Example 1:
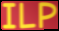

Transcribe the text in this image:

ILP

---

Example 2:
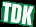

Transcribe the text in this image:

TDK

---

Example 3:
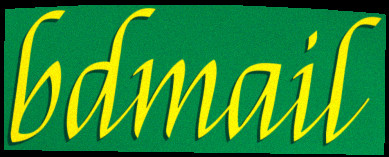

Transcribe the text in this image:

bdmail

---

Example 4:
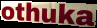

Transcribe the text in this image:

othuka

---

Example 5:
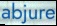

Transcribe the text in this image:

abjure